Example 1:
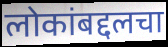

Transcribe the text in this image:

लोकांबद्दलचा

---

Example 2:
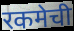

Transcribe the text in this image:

रकमेची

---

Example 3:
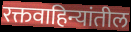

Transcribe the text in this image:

रक्तवाहिन्यांतील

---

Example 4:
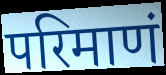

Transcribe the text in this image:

परिमाणं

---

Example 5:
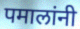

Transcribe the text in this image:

पमालांनी